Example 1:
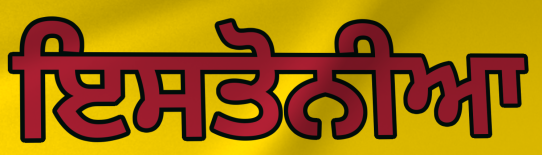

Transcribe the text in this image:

ਇਸਤੋਨੀਆ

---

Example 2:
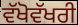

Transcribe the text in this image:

ਵੱਖੋਵੱਖਰੀ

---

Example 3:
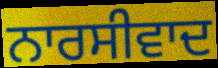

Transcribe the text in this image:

ਨਾਰਸੀਵਾਦ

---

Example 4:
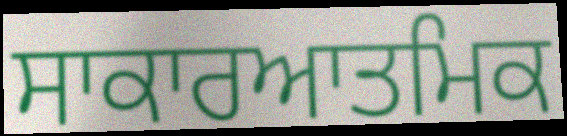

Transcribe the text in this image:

ਸਾਕਾਰਆਤਮਿਕ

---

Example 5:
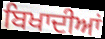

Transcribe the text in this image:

ਬਿਖਾਦੀਆਂ